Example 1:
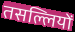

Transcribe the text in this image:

तसल्लियों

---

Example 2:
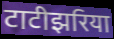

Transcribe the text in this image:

टाटीझरिया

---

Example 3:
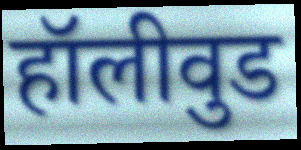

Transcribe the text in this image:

हॉलीवुड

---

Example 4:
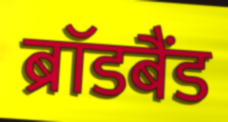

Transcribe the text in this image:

ब्रॉडबैंड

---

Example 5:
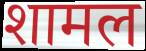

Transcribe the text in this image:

शामल